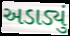
અડાડ્યું